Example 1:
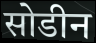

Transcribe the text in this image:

सोडीन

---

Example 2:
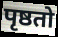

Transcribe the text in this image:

पृष्ठतो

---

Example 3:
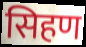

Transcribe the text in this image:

सिहण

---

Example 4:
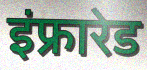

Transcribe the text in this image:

इंफ्रारेड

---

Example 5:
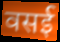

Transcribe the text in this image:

वसई